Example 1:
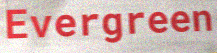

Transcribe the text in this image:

Evergreen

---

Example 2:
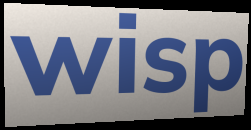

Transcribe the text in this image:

wisp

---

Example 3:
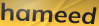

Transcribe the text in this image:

hameed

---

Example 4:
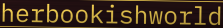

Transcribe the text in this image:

herbookishworld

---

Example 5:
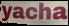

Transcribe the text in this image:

yacha